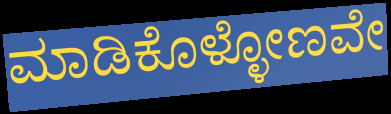
ಮಾಡಿಕೊಳ್ಳೋಣವೇ